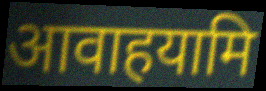
आवाहयामि